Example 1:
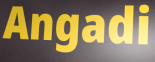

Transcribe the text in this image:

Angadi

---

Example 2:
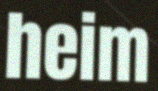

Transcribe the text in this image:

heim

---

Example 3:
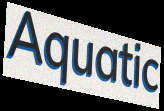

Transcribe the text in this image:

Aquatic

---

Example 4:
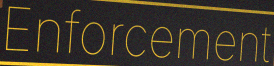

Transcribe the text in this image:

Enforcement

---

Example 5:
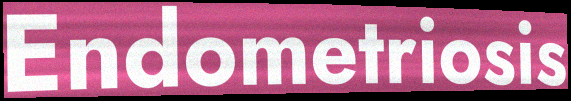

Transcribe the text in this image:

Endometriosis